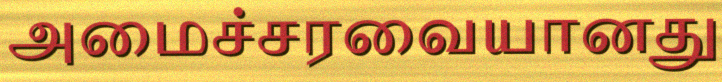
அமைச்சரவையானது